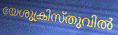
യേശുക്രിസ്തുവിൽ